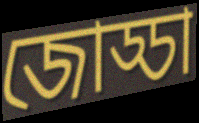
জোড্ডা